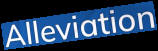
Alleviation